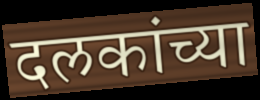
दलकांच्या